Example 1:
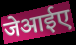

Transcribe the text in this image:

जेआईए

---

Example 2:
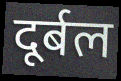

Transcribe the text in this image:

दूर्बल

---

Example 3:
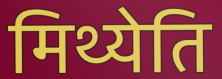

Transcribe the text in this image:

मिथ्येति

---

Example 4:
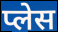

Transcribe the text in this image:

प्लेस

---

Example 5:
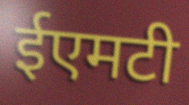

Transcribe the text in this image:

ईएमटी